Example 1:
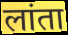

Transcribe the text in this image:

लांता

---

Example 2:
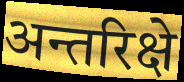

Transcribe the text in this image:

अन्तरिक्षे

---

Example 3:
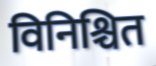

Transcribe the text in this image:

विनिश्चित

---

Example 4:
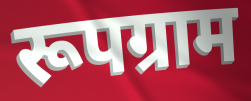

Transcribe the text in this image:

रूपग्राम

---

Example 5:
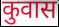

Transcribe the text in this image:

कुवास